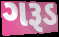
ગરૂડ